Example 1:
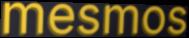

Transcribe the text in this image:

mesmos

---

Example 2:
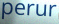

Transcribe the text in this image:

perur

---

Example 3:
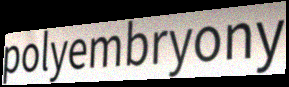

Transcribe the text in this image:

polyembryony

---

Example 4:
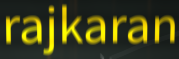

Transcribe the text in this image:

rajkaran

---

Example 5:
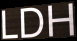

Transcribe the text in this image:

LDH